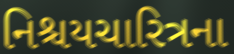
નિશ્ચયચારિત્રના